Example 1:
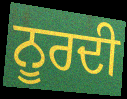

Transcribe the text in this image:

ਨੂਰਦੀ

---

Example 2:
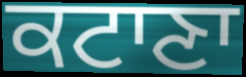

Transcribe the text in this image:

ਕਟਾਣਾ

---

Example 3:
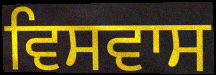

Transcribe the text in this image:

ਵਿਸਵਾਸ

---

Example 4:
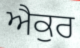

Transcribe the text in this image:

ਐਕੁਰ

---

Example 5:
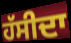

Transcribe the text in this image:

ਹੱਸੀਦਾ